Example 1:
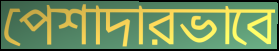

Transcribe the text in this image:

পেশাদারভাবে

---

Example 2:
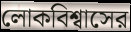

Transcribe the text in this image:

লোকবিশ্বাসের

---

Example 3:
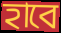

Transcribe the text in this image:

হাবে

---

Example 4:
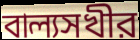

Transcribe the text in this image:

বাল্যসখীর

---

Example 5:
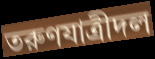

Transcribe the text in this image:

তরুণযাত্রীদল